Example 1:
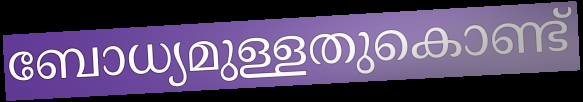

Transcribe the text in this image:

ബോധ്യമുള്ളതുകൊണ്ട്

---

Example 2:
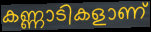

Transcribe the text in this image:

കണ്ണാടികളാണ്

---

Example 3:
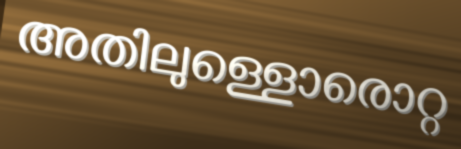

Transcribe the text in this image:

അതിലുള്ളൊരൊറ്റ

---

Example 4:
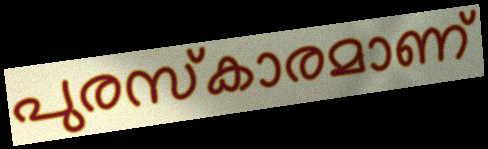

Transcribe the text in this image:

പുരസ്കാരമാണ്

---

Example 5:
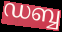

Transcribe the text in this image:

ഡബ്ബ